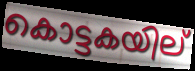
കൊട്ടകയില്